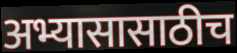
अभ्यासासाठीच